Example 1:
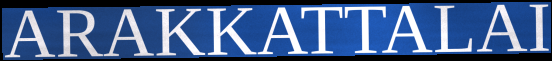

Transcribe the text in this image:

ARAKKATTALAI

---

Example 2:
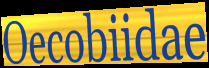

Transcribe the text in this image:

Oecobiidae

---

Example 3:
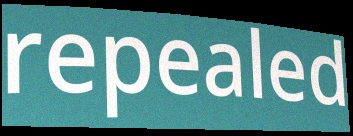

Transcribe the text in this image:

repealed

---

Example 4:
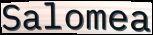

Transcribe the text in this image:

Salomea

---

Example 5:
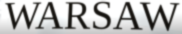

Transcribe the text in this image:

WARSAW